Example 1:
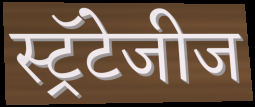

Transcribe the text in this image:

स्ट्रॅटेजीज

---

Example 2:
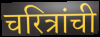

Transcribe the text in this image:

चरित्रांची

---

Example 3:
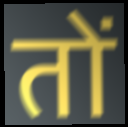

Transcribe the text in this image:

तों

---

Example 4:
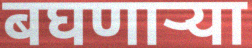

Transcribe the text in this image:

बघणाऱ्या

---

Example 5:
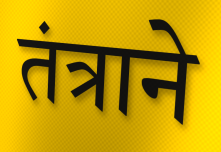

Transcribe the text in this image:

तंत्राने